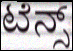
ಟೆನ್ಸ್